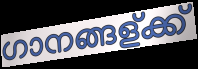
ഗാനങ്ങള്ക്ക്